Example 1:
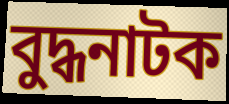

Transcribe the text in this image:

বুদ্ধনাটক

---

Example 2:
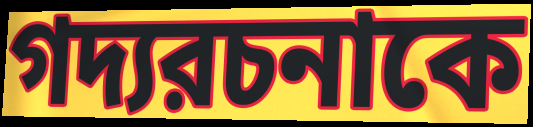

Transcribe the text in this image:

গদ্যরচনাকে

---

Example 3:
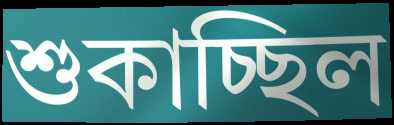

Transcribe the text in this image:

শুকাচ্ছিল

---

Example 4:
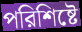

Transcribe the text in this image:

পরিশিষ্টে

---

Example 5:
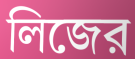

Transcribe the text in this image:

লিজের